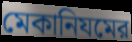
মেকানিযমের